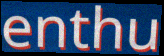
enthu